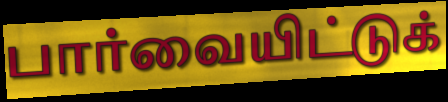
பார்வையிட்டுக்